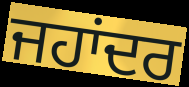
ਜਹਾਂਦਰ